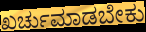
ಖರ್ಚುಮಾಡಬೇಕು